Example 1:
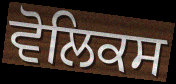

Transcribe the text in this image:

ਵੋਲਿਕਸ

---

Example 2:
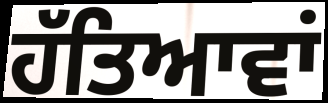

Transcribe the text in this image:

ਹੱਤਿਆਵਾਂ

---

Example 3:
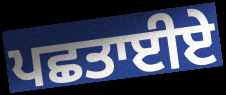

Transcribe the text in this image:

ਪਛਤਾਈਏ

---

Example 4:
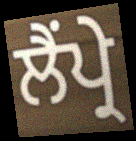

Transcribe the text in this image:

ਲੈਂਪ੍ਰੇ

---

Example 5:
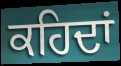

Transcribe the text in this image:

ਕਹਿਦਾਂ